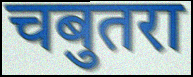
चबुतरा